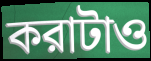
করাটাও